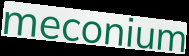
meconium